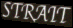
STRAIT